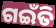
ଗଇଁତି